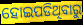
ହୋଇପଡିଥିବାରୁ